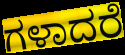
ಗಳಾದರೆ